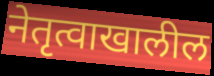
नेतृत्वाखालील